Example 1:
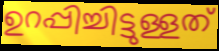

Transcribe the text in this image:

ഉറപ്പിച്ചിട്ടുള്ളത്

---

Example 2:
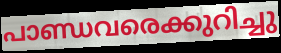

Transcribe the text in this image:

പാണ്ഡവരെക്കുറിച്ചു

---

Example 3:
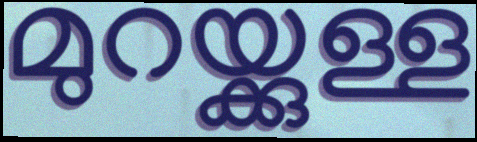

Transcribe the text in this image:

മുറയ്ക്കുള്ള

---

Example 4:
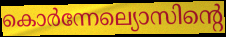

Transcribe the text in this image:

കൊർന്നേല്യൊസിന്റെ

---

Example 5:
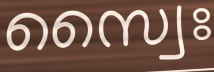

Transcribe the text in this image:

സ്വൈഃ